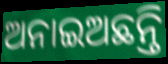
ଅନାଇଅଛନ୍ତି